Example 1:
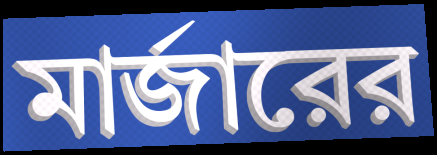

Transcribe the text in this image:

মার্জারের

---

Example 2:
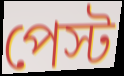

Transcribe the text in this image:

পেস্ট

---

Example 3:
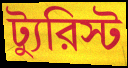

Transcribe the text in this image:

ট্যুরিস্ট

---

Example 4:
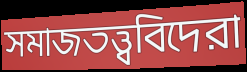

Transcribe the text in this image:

সমাজতত্ত্ববিদেরা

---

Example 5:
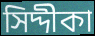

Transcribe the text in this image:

সিদ্দীকা